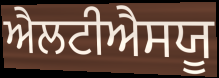
ਐਲਟੀਐਸਯੂ